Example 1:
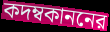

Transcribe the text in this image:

কদম্বকাননের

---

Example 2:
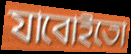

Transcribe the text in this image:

যাবোইতো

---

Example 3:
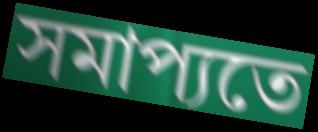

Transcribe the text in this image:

সমাপ্যতে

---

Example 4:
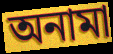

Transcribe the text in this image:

অনামা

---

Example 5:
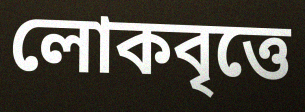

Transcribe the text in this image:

লোকবৃত্তে